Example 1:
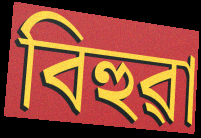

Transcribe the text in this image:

বিহুৱা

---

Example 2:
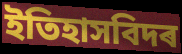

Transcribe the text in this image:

ইতিহাসবিদৰ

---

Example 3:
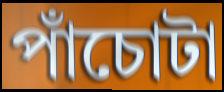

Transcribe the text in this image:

পাঁচোটা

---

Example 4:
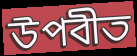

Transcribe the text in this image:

উপবীত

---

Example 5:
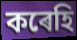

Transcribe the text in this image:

কৰেহি